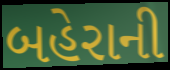
બહેરાની